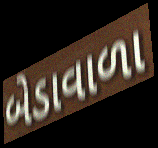
બેડાવાળા